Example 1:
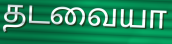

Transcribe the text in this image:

தடவையா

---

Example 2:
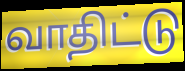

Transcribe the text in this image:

வாதிட்டு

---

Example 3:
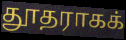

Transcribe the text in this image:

தூதராகக்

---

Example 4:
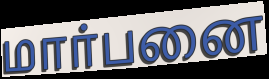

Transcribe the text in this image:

மார்பனை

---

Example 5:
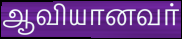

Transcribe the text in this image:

ஆவியானவர்